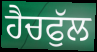
ਹੈਚਫੁੱਲ